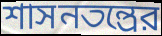
শাসনতন্ত্রের